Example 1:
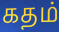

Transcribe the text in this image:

கதம்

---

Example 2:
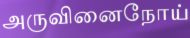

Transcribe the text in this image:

அருவினைநோய்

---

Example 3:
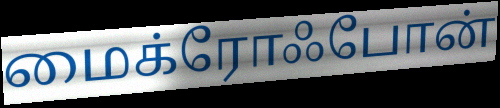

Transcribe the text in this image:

மைக்ரோஃபோன்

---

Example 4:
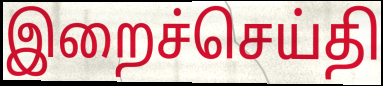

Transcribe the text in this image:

இறைச்செய்தி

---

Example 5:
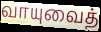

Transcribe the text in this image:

வாயுவைத்